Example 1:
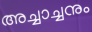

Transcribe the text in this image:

അച്ചാച്ചനും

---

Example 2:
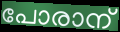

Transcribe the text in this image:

പോരാന്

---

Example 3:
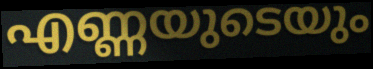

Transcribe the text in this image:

എണ്ണയുടെയും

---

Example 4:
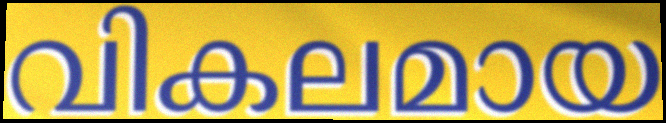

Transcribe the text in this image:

വികലമായ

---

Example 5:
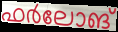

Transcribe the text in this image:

ഫർലോങ്